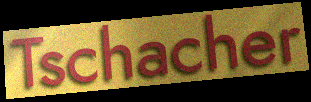
Tschacher